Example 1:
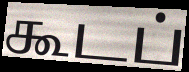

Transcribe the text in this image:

கூடப்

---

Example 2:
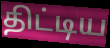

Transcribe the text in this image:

திட்டிய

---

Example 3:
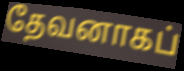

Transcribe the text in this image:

தேவனாகப்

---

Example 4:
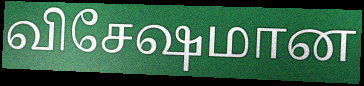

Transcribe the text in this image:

விசேஷமான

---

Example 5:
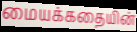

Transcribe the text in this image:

மையக்கதையின்